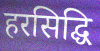
हरसिद्घि